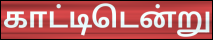
காட்டிடென்று